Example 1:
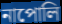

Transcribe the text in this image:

নাপোলি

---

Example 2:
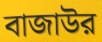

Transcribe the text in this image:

বাজাউর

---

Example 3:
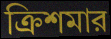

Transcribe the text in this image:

ক্রিশমার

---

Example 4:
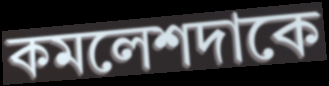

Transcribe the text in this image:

কমলেশদাকে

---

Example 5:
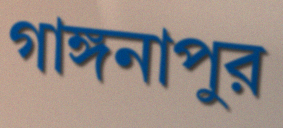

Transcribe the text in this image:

গাঙ্গনাপুর